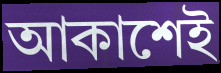
আকাশেই